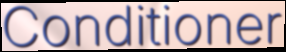
Conditioner